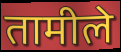
तामीले